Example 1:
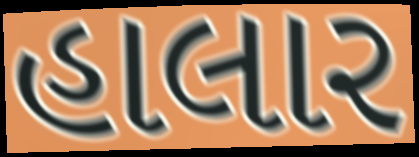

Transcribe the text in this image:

હાલાર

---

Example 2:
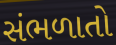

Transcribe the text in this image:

સંભળાતો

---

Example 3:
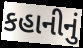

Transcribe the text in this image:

કહાનીનું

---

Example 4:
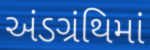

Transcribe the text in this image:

અંડગ્રંથિમાં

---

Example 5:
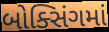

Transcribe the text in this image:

બોક્સિંગમાં